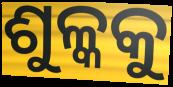
ଶୁଳ୍କକୁ